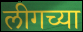
लीगच्या